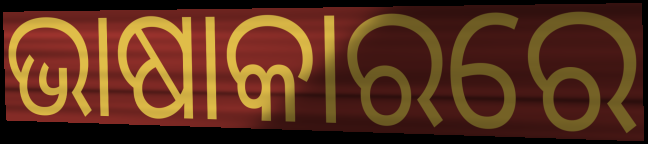
ଭାଷାକାରରେ